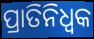
ପ୍ରାତିନିଧ୍ଵକ